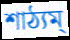
শাঠ্যম্